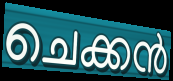
ചെക്കൻ